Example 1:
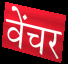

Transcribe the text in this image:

वेंचर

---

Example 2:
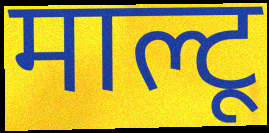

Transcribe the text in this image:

माल्टू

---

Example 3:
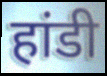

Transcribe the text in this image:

हांडी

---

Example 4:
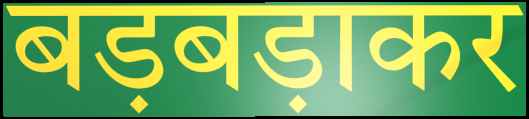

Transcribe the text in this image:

बड़बड़ाकर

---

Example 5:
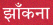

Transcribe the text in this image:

झाँकना